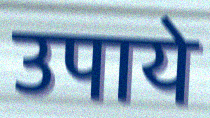
उपाये